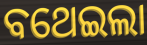
ବଥେଇଲା